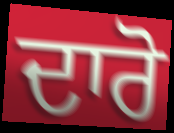
ਦਾਰੋ